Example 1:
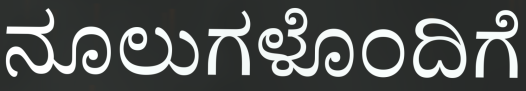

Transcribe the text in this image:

ನೂಲುಗಳೊಂದಿಗೆ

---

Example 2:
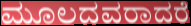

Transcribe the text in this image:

ಮೂಲದವರಾದರೆ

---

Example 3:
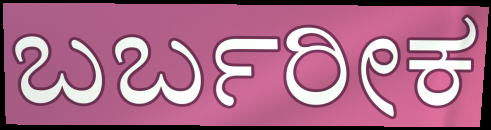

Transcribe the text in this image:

ಬರ್ಬರೀಕ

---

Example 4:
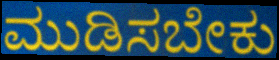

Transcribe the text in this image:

ಮುಡಿಸಬೇಕು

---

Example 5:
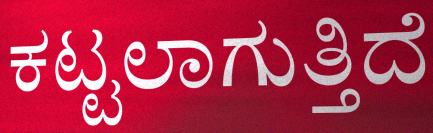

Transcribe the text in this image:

ಕಟ್ಟಲಾಗುತ್ತಿದೆ